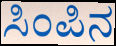
ಸಿಂಪಿನ